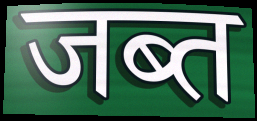
जब्त